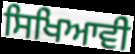
ਸਿਖਿਆਵੀ